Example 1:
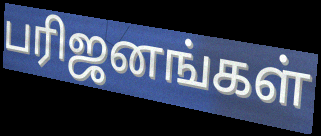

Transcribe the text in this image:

பரிஜனங்கள்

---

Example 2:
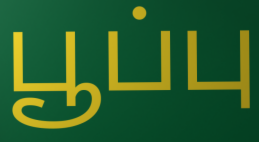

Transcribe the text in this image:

பூப்பு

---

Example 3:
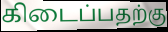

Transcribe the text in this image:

கிடைப்பதற்கு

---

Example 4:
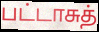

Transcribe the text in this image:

பட்டாசுத்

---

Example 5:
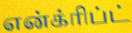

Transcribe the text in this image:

என்க்ரிப்ட்